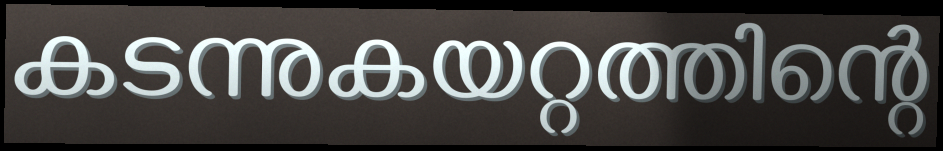
കടന്നുകയറ്റത്തിന്റെ